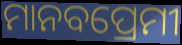
ମାନବପ୍ରେମୀ